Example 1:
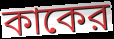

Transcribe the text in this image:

কাকের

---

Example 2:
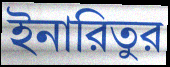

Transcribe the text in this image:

ইনারিতুর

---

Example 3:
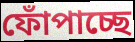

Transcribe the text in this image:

ফোঁপাচ্ছে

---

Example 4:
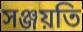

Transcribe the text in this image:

সঞ্জয়তি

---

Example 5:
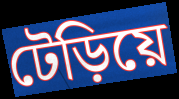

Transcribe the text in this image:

টেড়িয়ে